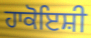
ਹਾਕੋਇਸ਼ੀ